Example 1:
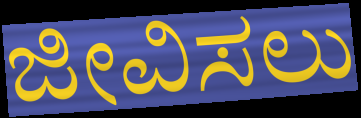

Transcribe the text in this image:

ಜೀವಿಸಲು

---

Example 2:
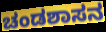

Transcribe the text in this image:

ಚಂಡಶಾಸನ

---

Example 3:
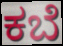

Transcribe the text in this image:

ಕಬೆ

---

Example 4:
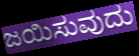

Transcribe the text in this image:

ಜಯಿಸುವುದು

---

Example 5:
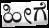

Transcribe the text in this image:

ಹೀಗೆ